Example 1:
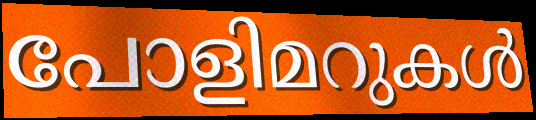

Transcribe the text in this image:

പോളിമറുകൾ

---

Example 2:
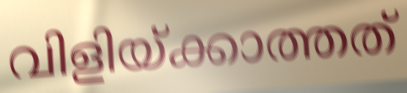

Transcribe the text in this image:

വിളിയ്ക്കാത്തത്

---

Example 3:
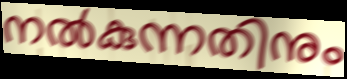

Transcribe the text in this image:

നൽകുന്നതിനും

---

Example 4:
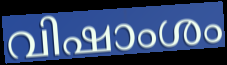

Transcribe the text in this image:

വിഷാംശം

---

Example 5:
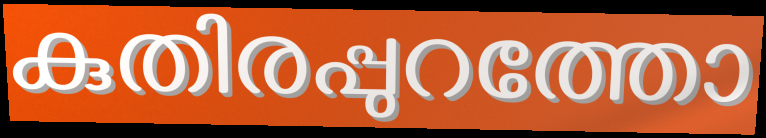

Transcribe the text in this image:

കുതിരപ്പുറത്തോ